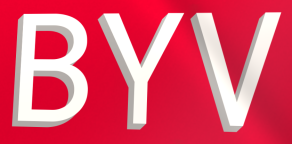
BYV